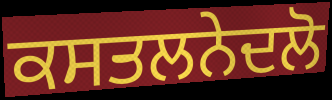
ਕਸਤਲਨੇਦਲੋ